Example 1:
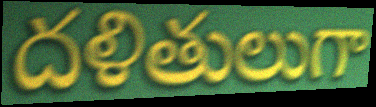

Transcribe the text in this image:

దళితులుగా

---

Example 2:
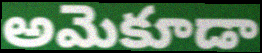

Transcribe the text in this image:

అమెకూడా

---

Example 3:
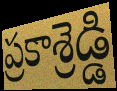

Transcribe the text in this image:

ప్రకాశ్రెడ్డి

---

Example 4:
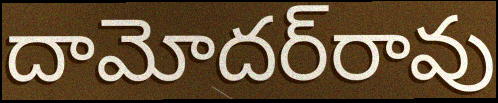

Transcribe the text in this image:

దామోదర్‌రావు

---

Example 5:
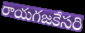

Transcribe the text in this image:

రాయగజకేసరి